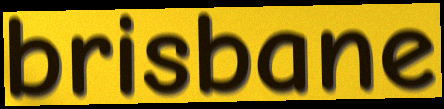
brisbane